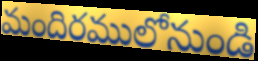
మందిరములోనుండి